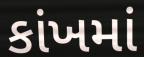
કાંખમાં